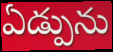
ఏడ్పును